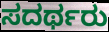
ಸದರ್ಥರು